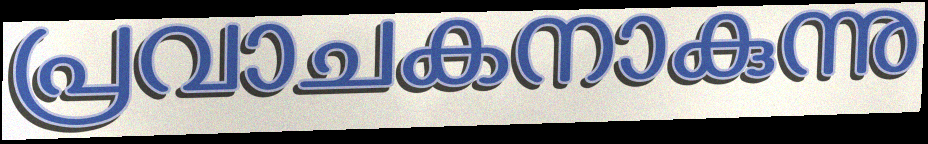
പ്രവാചകനാകുന്നു